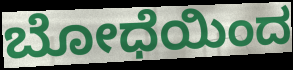
ಬೋಧೆಯಿಂದ